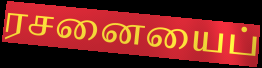
ரசனையைப்